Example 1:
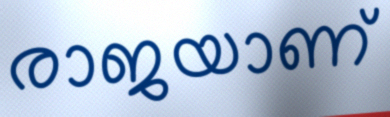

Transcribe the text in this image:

രാജയാണ്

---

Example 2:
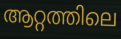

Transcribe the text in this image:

ആറ്റത്തിലെ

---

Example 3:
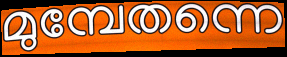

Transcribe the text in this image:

മുമ്പേതന്നെ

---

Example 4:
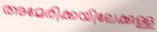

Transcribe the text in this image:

അമേരിക്കയിലേക്കുള്ള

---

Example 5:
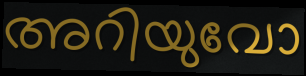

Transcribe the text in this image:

അറിയുവോ